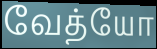
வேத்யோ